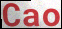
Cao